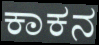
ಕಾಕನ